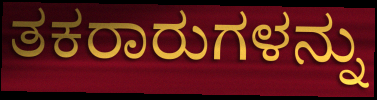
ತಕರಾರುಗಳನ್ನು